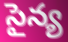
సైన్య